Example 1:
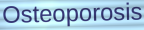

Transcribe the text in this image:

Osteoporosis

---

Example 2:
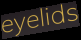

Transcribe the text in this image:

eyelids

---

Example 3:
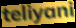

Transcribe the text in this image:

teliyani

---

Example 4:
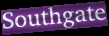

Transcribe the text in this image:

Southgate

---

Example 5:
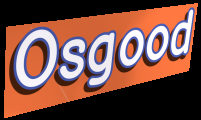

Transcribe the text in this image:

Osgood